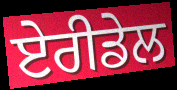
ਏਰੀਡੇਲ